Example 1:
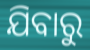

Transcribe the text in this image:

ଯିବାରୁ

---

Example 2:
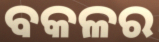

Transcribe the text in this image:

ବକଳର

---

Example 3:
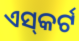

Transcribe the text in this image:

ଏସ୍‌କର୍ଟ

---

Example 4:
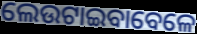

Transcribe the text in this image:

ଲେଉଟାଇବାବେଳେ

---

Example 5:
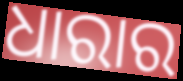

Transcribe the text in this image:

ଧାରାର